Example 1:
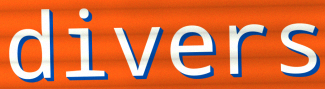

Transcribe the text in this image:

divers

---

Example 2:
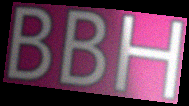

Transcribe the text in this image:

BBH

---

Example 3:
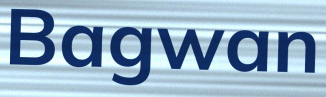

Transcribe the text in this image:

Bagwan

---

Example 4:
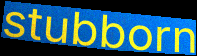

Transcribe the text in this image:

stubborn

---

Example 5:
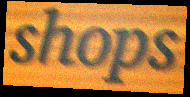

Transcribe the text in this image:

shops